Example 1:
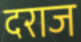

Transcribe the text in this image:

दराज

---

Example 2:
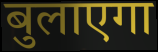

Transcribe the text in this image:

बुलाएगा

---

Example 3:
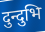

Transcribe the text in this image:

दुन्दुभि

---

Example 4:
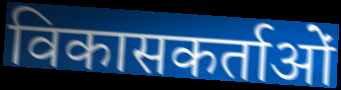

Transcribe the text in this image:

विकासकर्ताओं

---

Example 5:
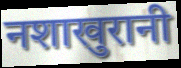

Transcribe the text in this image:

नशाखुरानी